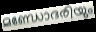
മണ്ഡോദരിയും